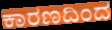
ಕಾರಣದಿಂದ